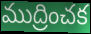
ముద్రించక